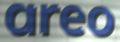
areo